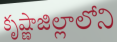
కృష్ణాజిల్లాలోని